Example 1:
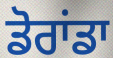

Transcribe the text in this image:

ਡੋਰਾਂਡਾ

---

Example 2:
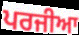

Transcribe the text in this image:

ਪਰਜੀਆ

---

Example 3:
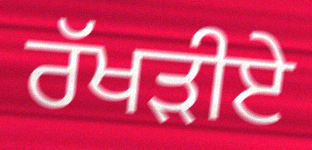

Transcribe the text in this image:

ਰੱਖੜੀਏ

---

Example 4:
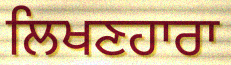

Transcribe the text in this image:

ਲਿਖਣਹਾਰਾ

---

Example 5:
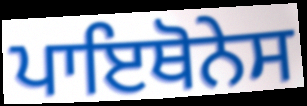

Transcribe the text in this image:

ਪਾਇਥੋਨੇਸ